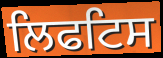
ਲਿਫਟਿਸ